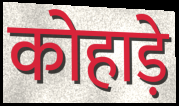
कोहाड़े